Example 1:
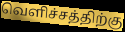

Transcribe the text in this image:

வெளிச்சத்திற்கு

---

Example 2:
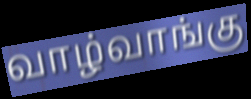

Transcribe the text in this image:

வாழ்வாங்கு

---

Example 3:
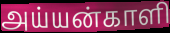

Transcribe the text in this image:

அய்யன்காளி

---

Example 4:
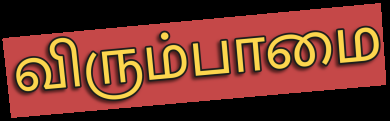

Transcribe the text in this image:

விரும்பாமை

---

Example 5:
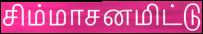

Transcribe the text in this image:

சிம்மாசனமிட்டு